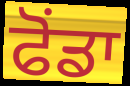
ਫੋਂਡਾ